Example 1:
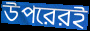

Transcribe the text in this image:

উপরেরই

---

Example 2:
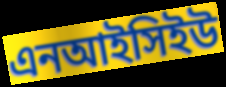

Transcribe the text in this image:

এনআইসিইউ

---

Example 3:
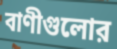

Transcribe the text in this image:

বাণীগুলোর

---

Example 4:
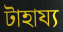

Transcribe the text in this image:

টাহায্য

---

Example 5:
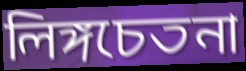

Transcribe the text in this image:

লিঙ্গচেতনা